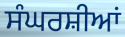
ਸੰਘਰਸ਼ੀਆਂ